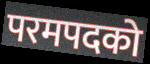
परमपदको